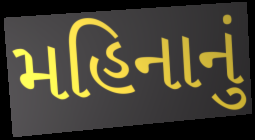
મહિનાનું